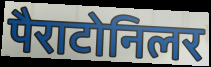
पैराटोनिलर